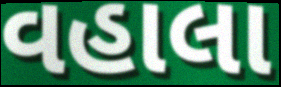
વહાલા